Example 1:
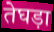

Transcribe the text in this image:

तेघड़ा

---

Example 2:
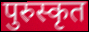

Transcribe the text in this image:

पुरुस्कृत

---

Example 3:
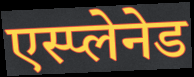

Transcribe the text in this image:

एस्प्लेनेड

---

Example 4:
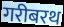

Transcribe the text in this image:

गरीबरथ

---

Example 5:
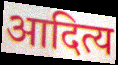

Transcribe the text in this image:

आदित्य